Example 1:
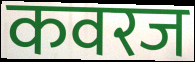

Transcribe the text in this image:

कवरज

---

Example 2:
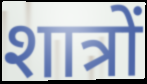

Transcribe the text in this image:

शात्रों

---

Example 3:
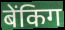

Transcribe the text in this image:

बेंकिग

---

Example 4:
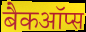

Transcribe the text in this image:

बैकऑप्स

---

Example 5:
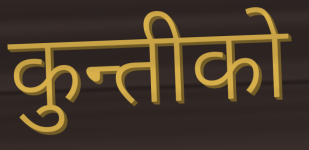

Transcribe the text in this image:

कुन्तीको